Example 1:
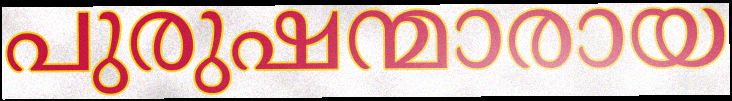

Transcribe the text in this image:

പുരുഷന്മാരായ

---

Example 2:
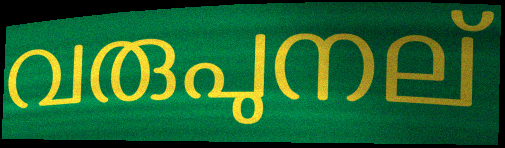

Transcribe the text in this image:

വരുപുനല്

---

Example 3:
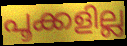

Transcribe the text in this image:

പൂക്കളില്ല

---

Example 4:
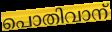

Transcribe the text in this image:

പൊതിവാന്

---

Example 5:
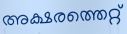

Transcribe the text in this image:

അക്ഷരത്തെറ്റ്